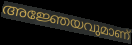
അജ്ഞേയവുമാണ്